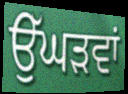
ਉੱਘੜਵਾਂ